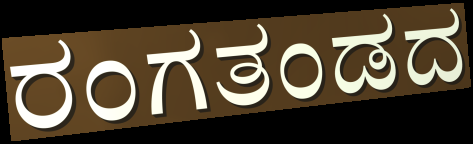
ರಂಗತಂಡದ